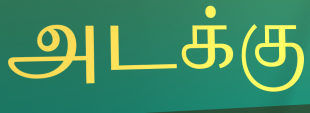
அடக்கு